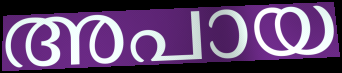
അപായ